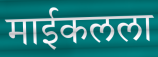
माईकलला